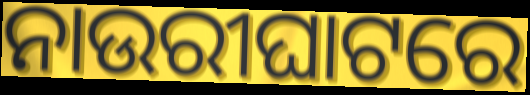
ନାଉରୀଘାଟରେ